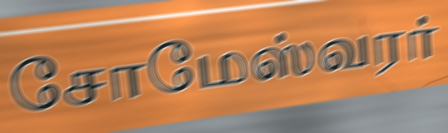
சோமேஸ்வரர்